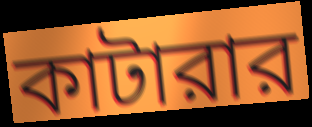
কাটারার